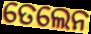
ତେଲେନ